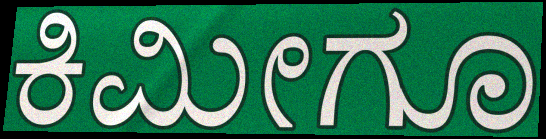
ಕಿಮೀಗೂ